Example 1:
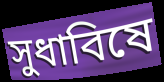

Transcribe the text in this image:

সুধাবিষে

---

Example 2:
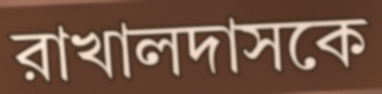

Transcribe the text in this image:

রাখালদাসকে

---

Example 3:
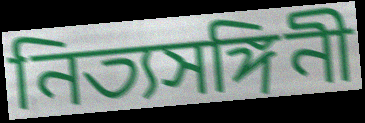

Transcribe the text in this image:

নিত্যসঙ্গিনী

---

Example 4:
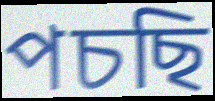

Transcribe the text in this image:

পচছি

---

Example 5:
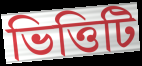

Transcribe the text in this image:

ভিত্তিটি